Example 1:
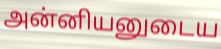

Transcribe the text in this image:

அன்னியனுடைய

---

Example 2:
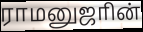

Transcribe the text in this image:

ராமனுஜரின்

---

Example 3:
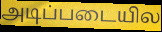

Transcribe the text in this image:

அடிப்படையில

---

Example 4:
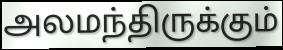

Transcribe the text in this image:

அலமந்திருக்கும்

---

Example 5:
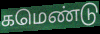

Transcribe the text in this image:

கமெண்டு